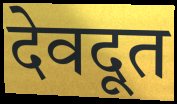
देवदूत